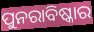
ପୁନରାବିଷ୍କାର